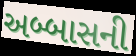
અબ્બાસની